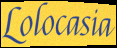
Lolocasia